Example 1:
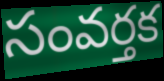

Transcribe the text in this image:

సంవర్తక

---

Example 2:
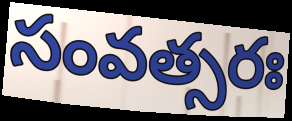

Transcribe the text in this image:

సంవత్సరః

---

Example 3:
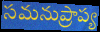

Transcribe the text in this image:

సమనుప్రాప్య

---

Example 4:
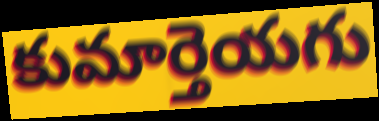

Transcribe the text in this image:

కుమార్తెయగు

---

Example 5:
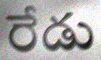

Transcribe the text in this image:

రేడు